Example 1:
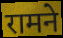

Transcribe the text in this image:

रामने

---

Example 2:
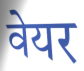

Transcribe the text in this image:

वेयर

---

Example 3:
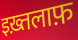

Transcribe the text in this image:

इख़्तलाफ़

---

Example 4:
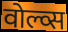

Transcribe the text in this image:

वोल्व्स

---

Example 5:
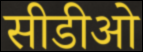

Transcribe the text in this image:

सीडीओ